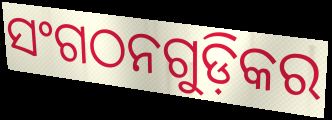
ସଂଗଠନଗୁଡ଼ିକର